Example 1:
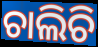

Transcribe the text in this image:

ଚାଲିଚି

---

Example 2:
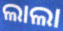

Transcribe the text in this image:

ଲାଲା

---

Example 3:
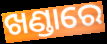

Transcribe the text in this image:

ଖଣ୍ଡାରେ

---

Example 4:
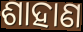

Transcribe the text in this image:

ଶାହାଣ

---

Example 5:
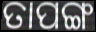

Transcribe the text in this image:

ତାପଙ୍ଗ